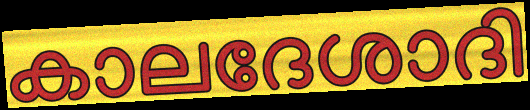
കാലദേശാദി